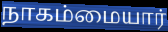
நாகம்மையார்